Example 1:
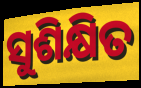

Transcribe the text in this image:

ସୁଶିକ୍ଷିତ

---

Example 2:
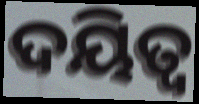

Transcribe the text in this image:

ଦୟିତ୍ୱ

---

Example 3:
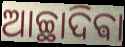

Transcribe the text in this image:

ଆଚ୍ଛାଦିଵା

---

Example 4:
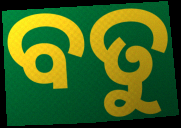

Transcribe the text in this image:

ବତୁ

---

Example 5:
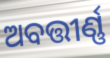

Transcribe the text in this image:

ଅବତ୍ତୀର୍ଣ୍ଣ